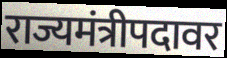
राज्यमंत्रीपदावर